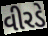
વીરડે